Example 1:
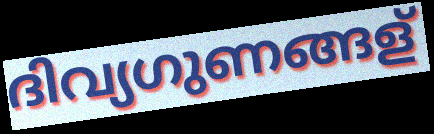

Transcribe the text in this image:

ദിവ്യഗുണങ്ങള്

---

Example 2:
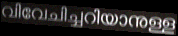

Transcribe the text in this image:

വിവേചിച്ചറിയാനുള്ള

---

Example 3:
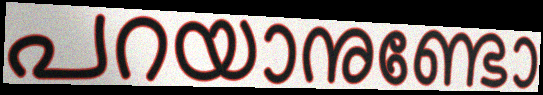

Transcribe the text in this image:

പറയാനുണ്ടോ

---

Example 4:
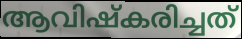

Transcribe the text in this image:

ആവിഷ്കരിച്ചത്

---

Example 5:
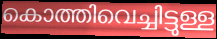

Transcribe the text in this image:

കൊത്തിവെച്ചിട്ടുള്ള